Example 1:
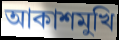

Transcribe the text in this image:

আকাশমুখি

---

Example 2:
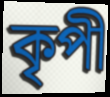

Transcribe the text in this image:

কৃপী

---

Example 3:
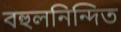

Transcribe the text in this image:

বহুলনিন্দিত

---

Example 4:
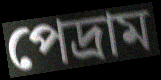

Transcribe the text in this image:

পেদ্রাম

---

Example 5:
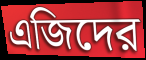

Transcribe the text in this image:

এজিদের